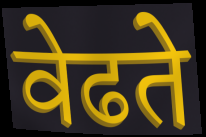
वेढते